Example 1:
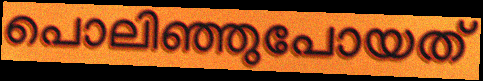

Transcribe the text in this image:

പൊലിഞ്ഞുപോയത്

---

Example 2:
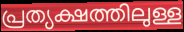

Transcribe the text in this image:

പ്രത്യക്ഷത്തിലുള്ള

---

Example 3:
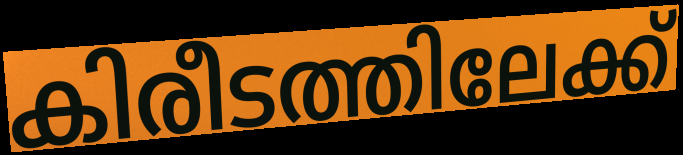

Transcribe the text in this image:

കിരീടത്തിലേക്ക്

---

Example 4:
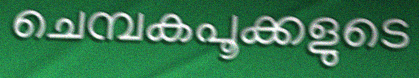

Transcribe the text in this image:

ചെമ്പകപൂക്കളുടെ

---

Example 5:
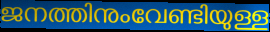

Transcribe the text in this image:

ജനത്തിനുംവേണ്ടിയുള്ള